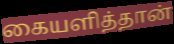
கையளித்தான்